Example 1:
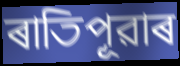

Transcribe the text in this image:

ৰাতিপূৱাৰ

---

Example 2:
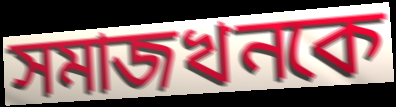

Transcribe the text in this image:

সমাজখনকে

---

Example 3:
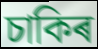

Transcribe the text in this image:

চাকিৰ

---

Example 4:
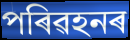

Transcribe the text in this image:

পৰিৱহনৰ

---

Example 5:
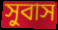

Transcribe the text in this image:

সুবাস